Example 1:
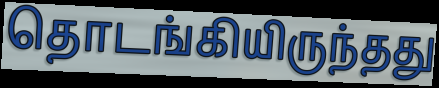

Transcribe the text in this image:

தொடங்கியிருந்தது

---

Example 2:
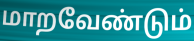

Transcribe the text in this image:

மாறவேண்டும்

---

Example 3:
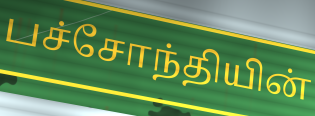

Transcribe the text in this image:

பச்சோந்தியின்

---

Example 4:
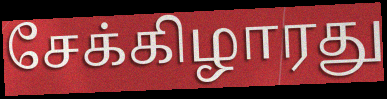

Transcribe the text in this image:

சேக்கிழாரது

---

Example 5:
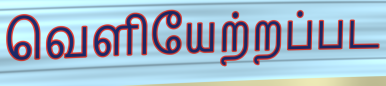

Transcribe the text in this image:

வெளியேற்றப்பட